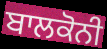
ਬਾਲਕੋਨੀ